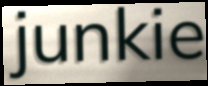
junkie